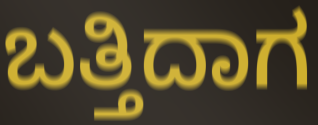
ಬತ್ತಿದಾಗ